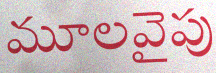
మూలవైపు